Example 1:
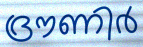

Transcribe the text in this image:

ദ്രൗണിർ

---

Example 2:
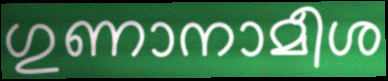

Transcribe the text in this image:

ഗുണാനാമീശ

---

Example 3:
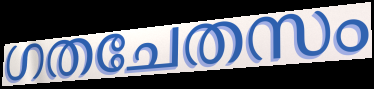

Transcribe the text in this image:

ഗതചേതസം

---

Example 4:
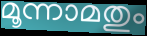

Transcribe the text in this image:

മൂന്നാമതും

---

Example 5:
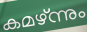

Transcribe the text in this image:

കമഴ്ന്നും